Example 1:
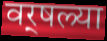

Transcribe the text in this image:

वर्षल्या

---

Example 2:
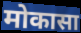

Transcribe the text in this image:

मोकासा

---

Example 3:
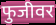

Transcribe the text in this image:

फुजीवर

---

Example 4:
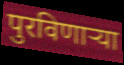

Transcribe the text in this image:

पुरविणाऱ्या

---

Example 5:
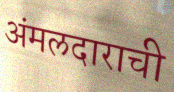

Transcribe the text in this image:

अंमलदाराची